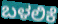
ಬಳಲಿಕೆ